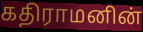
கதிராமனின்